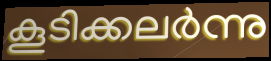
കൂടിക്കലർന്നു